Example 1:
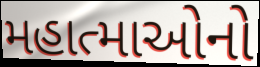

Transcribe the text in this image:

મહાત્માઓનો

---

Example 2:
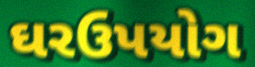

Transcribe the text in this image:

ઘરઉપયોગ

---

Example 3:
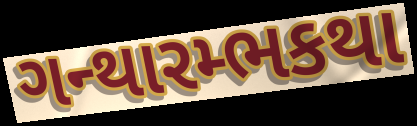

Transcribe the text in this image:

ગન્થારમ્ભકથા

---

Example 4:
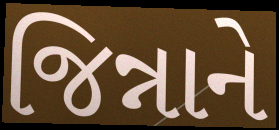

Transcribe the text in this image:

જિન્નાને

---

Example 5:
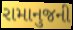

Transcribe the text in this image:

રામાનુજની